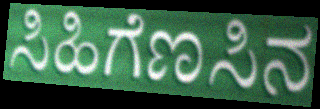
ಸಿಹಿಗೆಣಸಿನ